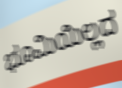
ಭೂಮಿಯಿಲ್ಲದ